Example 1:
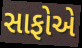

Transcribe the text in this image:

સાફોએ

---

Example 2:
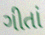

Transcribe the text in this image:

ગીતાં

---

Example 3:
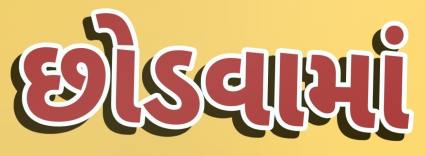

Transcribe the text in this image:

છોડવામાં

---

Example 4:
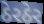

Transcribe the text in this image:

ઠેરઠેર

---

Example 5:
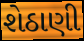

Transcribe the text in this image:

શેઠાણી